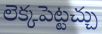
లెక్కపెట్టచ్చు